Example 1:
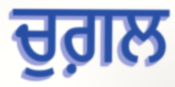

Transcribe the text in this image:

ਚੁਗ਼ਲ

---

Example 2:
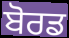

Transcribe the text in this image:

ਬੋਰਡ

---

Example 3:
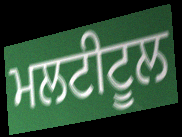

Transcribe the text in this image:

ਮਲਟੀਟੂਲ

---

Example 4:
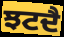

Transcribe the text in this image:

ਝਟਦੈ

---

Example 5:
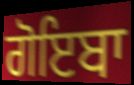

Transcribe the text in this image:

ਗੋਇਬਾ